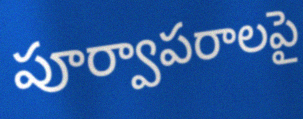
పూర్వాపరాలపై